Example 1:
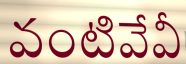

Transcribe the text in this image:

వంటివేవీ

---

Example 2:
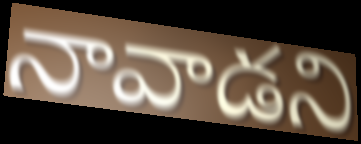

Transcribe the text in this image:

నావాడని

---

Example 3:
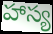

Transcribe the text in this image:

హాస్య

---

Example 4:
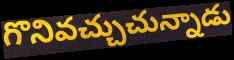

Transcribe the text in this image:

గొనివచ్చుచున్నాడు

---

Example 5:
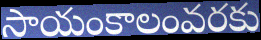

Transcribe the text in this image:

సాయంకాలంవరకు